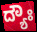
ದ್ಯೌಃ